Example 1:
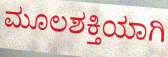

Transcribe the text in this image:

ಮೂಲಶಕ್ತಿಯಾಗಿ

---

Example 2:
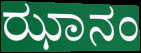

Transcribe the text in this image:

ಝಾನಂ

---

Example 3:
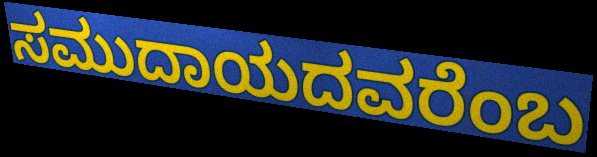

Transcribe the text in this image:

ಸಮುದಾಯದವರೆಂಬ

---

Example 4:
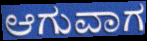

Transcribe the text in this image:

ಆಗುವಾಗ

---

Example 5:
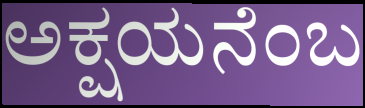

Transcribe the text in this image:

ಅಕ್ಷಯನೆಂಬ